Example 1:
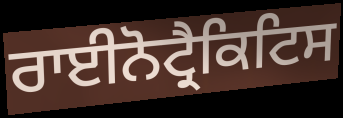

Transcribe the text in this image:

ਰਾਈਨੋਟ੍ਰੈਕਿਟਿਸ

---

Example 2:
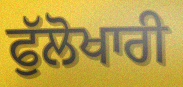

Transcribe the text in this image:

ਫੁੱਲੋਖਾਰੀ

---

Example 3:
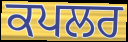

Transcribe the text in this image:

ਕਪਲਰ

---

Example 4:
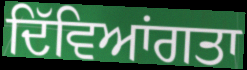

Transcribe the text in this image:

ਦਿੱਵਿਆਂਗਤਾ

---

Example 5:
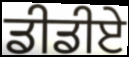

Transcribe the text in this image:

ਡੀਡੀਏ